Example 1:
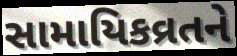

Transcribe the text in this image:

સામાયિકવ્રતને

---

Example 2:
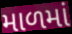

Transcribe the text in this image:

માળમાં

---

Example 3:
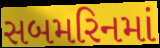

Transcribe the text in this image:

સબમરિનમાં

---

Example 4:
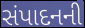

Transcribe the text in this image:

સંપાદનની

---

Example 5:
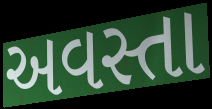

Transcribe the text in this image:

અવસ્તા